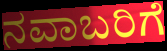
ನವಾಬರಿಗೆ